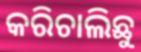
କରିଚାଲିଛୁ